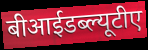
बीआईडब्ल्यूटीए